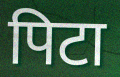
पिटा